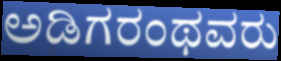
ಅಡಿಗರಂಥವರು